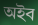
অইব